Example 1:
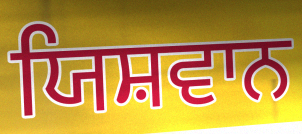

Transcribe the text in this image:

ਯਿਸ਼ਵਾਨ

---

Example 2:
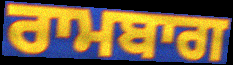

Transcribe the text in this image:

ਰਾਮਬਾਗ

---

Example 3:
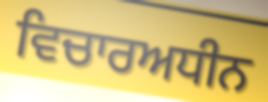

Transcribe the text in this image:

ਵਿਚਾਰਅਧੀਨ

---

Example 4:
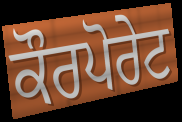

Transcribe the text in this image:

ਕੌਰਪੋਰੇਟ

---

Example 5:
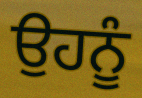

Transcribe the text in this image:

ਉਹਨੂੰ